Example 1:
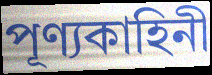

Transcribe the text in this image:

পূণ্যকাহিনী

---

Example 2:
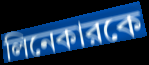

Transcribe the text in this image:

লিনেকারকে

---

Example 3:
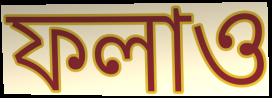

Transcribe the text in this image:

ফলাও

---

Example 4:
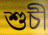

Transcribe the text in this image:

শুচী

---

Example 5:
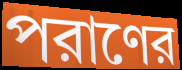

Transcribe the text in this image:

পরাণের